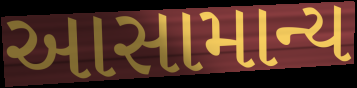
આસામાન્ય